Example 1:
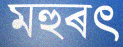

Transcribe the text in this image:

মহুৰৎ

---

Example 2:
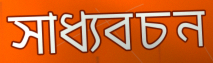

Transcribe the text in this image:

সাধ্যবচন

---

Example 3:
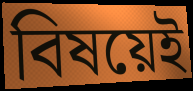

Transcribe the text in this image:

বিষয়েই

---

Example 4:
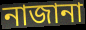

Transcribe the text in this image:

নাজানা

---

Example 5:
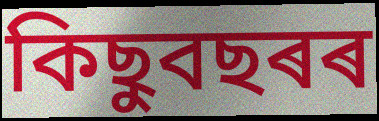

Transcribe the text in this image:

কিছুবছৰৰ